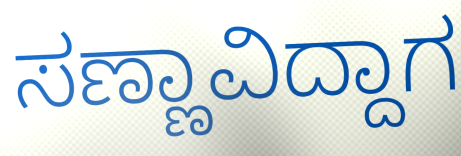
ಸಣ್ಣಾವಿದ್ದಾಗ